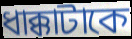
ধাক্কাটাকে